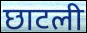
छाटली